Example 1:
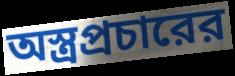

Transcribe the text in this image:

অস্ত্রপ্রচারের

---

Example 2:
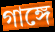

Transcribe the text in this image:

গাঙ্গে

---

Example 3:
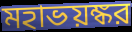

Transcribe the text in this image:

মহাভয়ঙ্কর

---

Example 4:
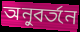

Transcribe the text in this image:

অনুবর্তনে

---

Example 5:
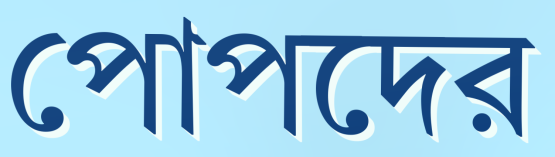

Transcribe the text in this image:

পোপদের